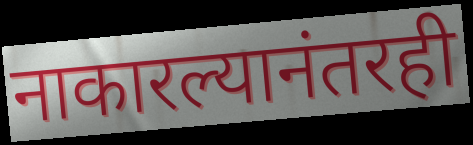
नाकारल्यानंतरही